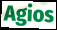
Agios